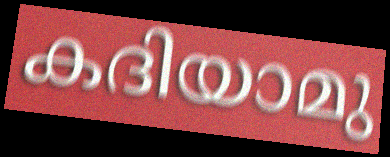
കദിയാമു